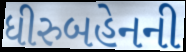
ધીરુબહેનની